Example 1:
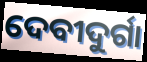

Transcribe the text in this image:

ଦେବୀଦୁର୍ଗା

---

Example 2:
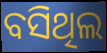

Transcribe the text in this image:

ବସିଥିଲ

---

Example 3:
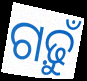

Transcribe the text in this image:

ଗଢ଼ୁଁ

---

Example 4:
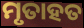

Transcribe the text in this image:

ମୃତାହତ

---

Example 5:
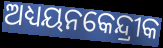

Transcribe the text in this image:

ଅଧ୍ୟୟନକେନ୍ଦ୍ରୀକ